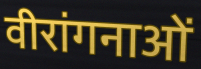
वीरांगनाओं